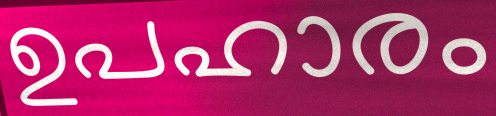
ഉപഹാരം